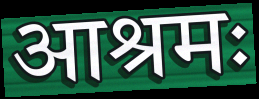
आश्रमः